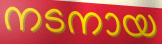
നടനായ